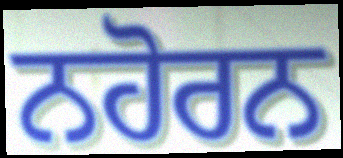
ਨਹੋਰਨ